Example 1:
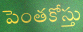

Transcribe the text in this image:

పెంతకోస్తు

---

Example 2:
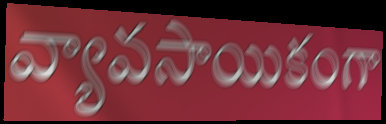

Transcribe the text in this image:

వ్యావసాయికంగా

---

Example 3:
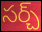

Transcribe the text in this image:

సర్చ్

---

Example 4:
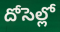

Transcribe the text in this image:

దోసెల్లో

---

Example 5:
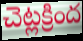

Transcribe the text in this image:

చెట్లక్రింద